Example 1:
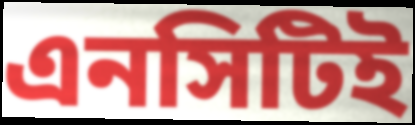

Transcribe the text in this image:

এনসিটিই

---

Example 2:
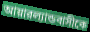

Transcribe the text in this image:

আয়ারল্যান্ডবাসীকে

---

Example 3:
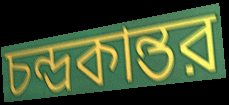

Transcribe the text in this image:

চন্দ্রকান্তর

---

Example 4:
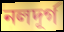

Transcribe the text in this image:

নলদূর্গ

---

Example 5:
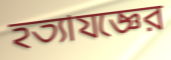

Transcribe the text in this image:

হত্যাযজ্ঞের